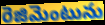
రెజిమెంటును